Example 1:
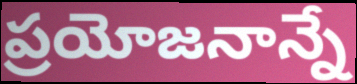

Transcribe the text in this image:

ప్రయోజనాన్నే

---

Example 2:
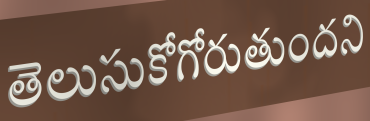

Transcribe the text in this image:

తెలుసుకోగోరుతుందని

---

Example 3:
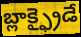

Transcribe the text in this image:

బ్లాక్ఫ్రైడే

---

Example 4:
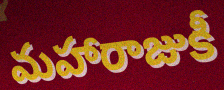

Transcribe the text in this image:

మహారాజుకీ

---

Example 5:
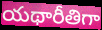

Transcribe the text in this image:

యథారీతిగా